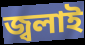
জ্বলাই